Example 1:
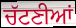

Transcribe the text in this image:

ਚੱਟਣੀਆਂ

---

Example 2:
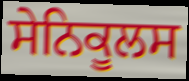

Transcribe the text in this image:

ਸੇਨਿਕੂਲਸ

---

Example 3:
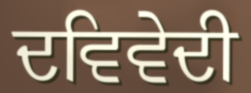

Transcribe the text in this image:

ਦਵਿਵੇਦੀ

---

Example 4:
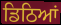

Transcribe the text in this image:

ਡਿਠਿਆਂ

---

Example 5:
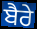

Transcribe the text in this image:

ਬੈਰੇ